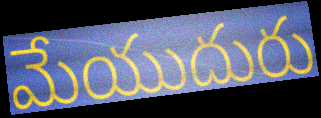
మేయుదురు